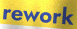
rework